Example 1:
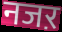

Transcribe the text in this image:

नजऱ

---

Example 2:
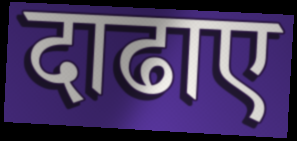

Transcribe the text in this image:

दाढाए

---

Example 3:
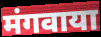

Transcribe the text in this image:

मंगवाया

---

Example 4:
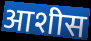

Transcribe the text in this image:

आशीस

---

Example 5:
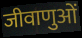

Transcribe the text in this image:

जीवाणुओं